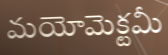
మయోమెక్టమీ